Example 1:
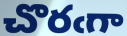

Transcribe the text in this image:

చొరఁగా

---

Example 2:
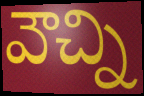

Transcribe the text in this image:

వౌచ్ని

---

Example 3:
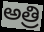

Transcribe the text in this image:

అత్రి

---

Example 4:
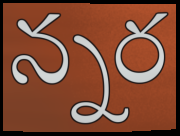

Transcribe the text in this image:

న్నర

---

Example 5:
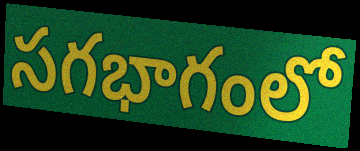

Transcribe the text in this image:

సగభాగంలో